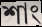
শাং